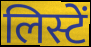
लिस्टें